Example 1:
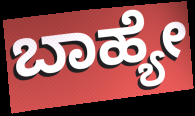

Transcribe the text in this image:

ಬಾಹ್ಯೇ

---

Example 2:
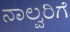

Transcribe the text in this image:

ನಾಲ್ವರಿಗೆ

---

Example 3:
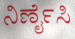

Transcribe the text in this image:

ನಿರ್ಣೈಸಿ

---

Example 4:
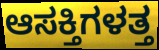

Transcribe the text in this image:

ಆಸಕ್ತಿಗಳತ್ತ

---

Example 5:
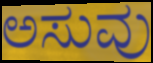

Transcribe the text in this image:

ಅಸುವು